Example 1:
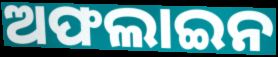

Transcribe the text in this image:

ଅଫଲାଇନ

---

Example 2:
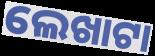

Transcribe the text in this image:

ଲେଖାଟା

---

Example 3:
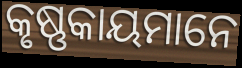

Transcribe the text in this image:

କୃଷ୍ଣକାୟମାନେ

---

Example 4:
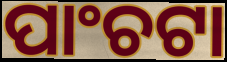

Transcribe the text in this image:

ପାଂଚଟା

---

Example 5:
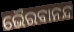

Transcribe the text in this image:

ଭୈରବାନନ୍ଦ